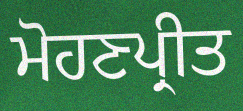
ਮੋਹਣਪ੍ਰੀਤ